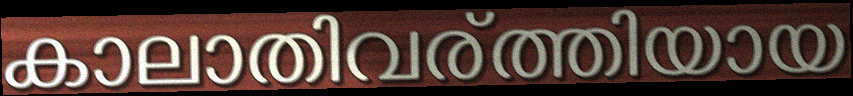
കാലാതിവര്ത്തിയായ